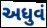
અધુવં